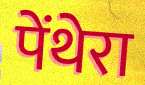
पेंथेरा